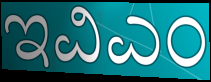
ಇವಿಎಂ